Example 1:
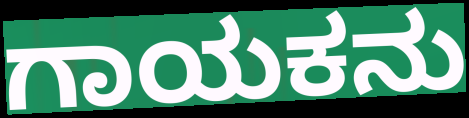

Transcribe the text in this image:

ಗಾಯಕನು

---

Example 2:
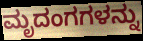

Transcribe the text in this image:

ಮೃದಂಗಗಳನ್ನು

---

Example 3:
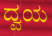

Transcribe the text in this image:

ದ್ವಯ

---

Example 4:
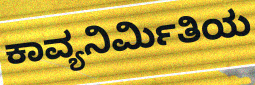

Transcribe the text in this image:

ಕಾವ್ಯನಿರ್ಮಿತಿಯ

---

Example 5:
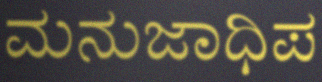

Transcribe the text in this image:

ಮನುಜಾಧಿಪ